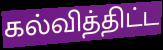
கல்வித்திட்ட